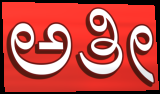
ಅತೀ